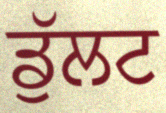
ਡੁੱਲਟ